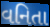
વનિતા